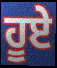
ਹੂਏ